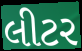
લીટર